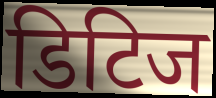
डिटिज